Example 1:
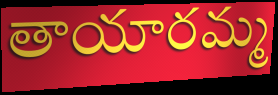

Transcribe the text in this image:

తాయారమ్మ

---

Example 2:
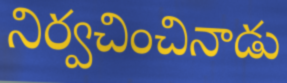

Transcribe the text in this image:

నిర్వచించినాడు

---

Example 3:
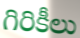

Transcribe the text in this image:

గిరికీలు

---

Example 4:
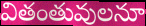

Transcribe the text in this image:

వితంతువులనూ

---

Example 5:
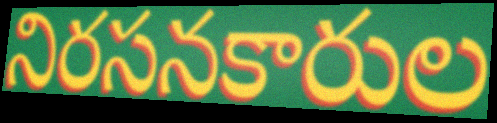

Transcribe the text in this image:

నిరసనకారుల